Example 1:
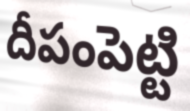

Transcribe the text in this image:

దీపంపెట్టి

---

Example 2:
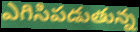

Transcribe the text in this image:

ఎగిసిపడుతున్న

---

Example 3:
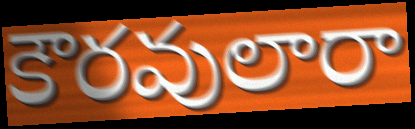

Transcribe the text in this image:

కౌరవులారా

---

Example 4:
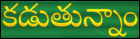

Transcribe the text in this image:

కడుతున్నాం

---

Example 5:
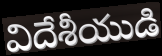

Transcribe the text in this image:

విదేశీయుడి